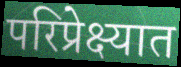
परिप्रेक्ष्यात